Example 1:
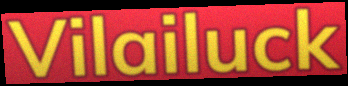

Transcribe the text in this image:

Vilailuck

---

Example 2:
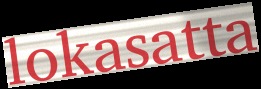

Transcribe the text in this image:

lokasatta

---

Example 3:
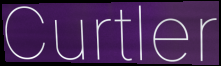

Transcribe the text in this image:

Curtler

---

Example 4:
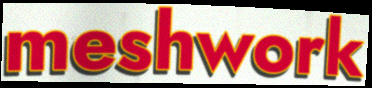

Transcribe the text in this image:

meshwork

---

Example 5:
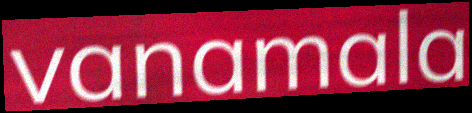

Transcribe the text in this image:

vanamala